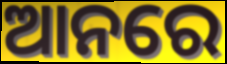
ଆନରେ